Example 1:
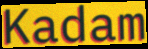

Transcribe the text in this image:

Kadam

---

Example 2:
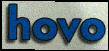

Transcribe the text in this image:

hovo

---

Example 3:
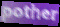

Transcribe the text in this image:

pother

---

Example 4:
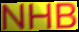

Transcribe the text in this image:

NHB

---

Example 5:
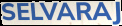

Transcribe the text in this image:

SELVARAJ